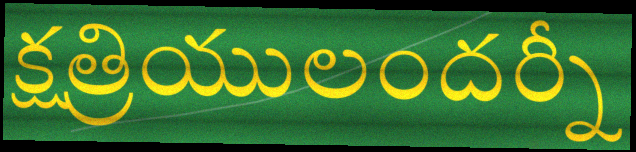
క్షత్రియులందర్నీ